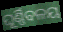
ଘୂର୍ଣ୍ଣିବଳୟ